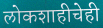
लोकशाहीचेही